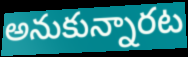
అనుకున్నారట